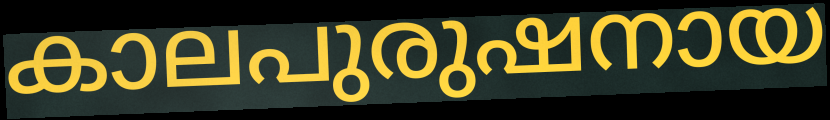
കാലപുരുഷനായ